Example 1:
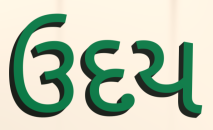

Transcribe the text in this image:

ઉદય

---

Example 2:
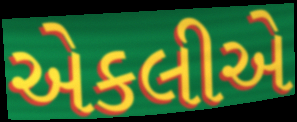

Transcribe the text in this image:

એકલીએ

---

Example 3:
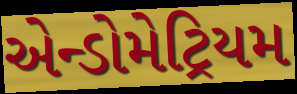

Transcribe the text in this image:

એન્ડોમેટ્રિયમ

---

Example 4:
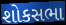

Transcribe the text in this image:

શોકસભા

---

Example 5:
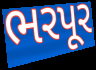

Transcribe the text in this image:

ભરપૂર